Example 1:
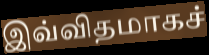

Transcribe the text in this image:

இவ்விதமாகச்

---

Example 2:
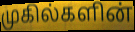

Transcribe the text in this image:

முகில்களின்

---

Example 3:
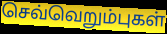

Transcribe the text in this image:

செவ்வெறும்புகள்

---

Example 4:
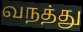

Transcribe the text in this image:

வநத்து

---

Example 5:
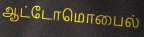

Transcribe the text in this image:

ஆட்டோமொபைல்